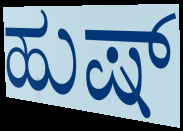
ಹುಷ್